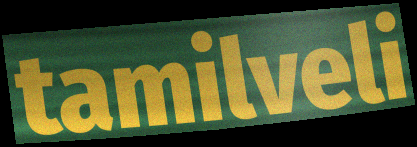
tamilveli